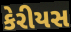
કેરીયસ